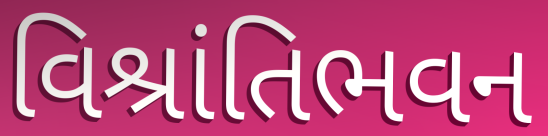
વિશ્રાંતિભવન